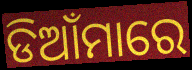
ଡିଆଁମାରେ